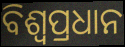
ବିଶ୍ୱପ୍ରଧାନ